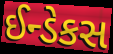
ઈન્ડેકસ